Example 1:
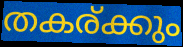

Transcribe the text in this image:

തകര്ക്കും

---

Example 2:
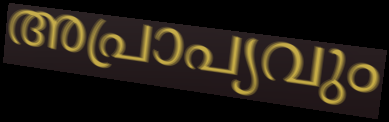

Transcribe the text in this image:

അപ്രാപ്യവും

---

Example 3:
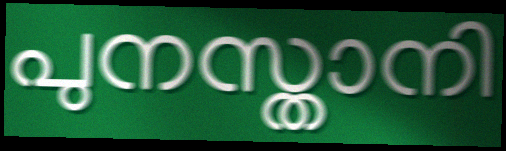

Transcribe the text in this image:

പുനസ്താനി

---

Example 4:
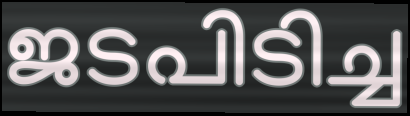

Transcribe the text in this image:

ജടപിടിച്ച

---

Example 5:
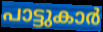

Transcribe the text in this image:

പാട്ടുകാർ